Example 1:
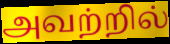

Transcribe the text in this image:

அவற்றில்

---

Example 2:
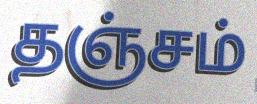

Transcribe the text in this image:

தஞ்சம்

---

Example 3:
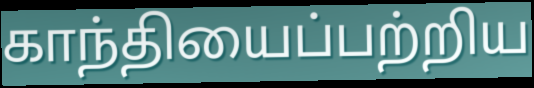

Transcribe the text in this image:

காந்தியைப்பற்றிய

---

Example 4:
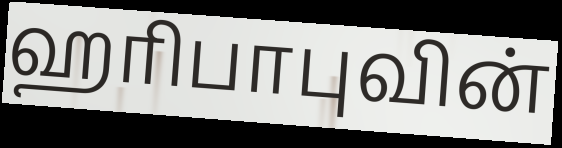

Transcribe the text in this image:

ஹரிபாபுவின்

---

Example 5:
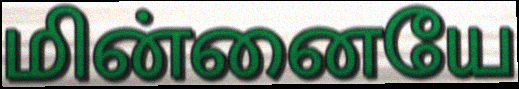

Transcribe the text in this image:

மின்னையே